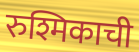
रुश्मिकाची